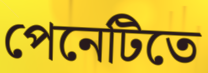
পেনেটিতে